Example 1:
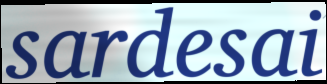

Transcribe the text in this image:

sardesai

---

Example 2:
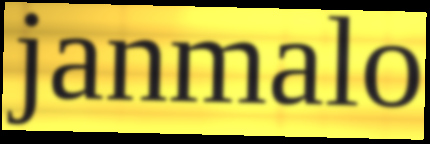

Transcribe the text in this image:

janmalo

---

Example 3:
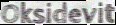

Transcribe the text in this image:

Oksidevit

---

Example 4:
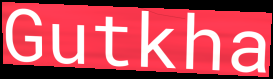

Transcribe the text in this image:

Gutkha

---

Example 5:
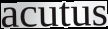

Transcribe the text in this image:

acutus